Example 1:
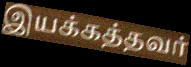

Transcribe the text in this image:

இயக்கத்தவர்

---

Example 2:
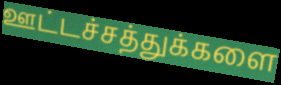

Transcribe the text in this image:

ஊட்டச்சத்துக்களை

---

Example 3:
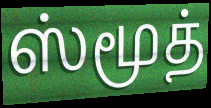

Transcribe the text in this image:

ஸ்மூத்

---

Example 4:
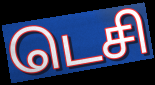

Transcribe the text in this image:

டெசி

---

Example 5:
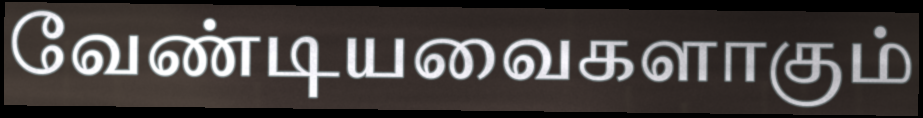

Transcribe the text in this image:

வேண்டியவைகளாகும்